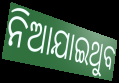
ନିଆଯାଇଥୁବ